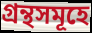
গ্রন্থসমূহে